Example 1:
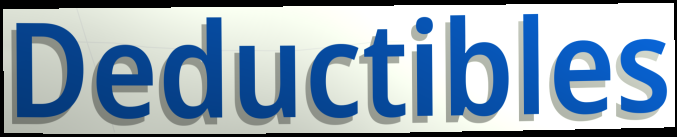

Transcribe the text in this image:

Deductibles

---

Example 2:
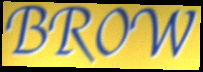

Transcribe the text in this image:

BROW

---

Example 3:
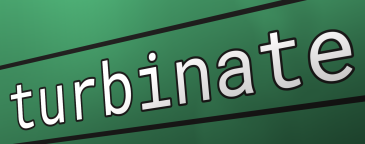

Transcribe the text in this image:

turbinate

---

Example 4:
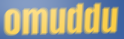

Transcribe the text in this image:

omuddu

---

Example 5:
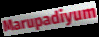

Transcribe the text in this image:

Marupadiyum